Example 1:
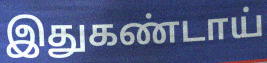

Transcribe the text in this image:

இதுகண்டாய்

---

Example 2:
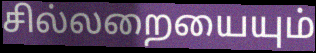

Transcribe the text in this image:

சில்லறையையும்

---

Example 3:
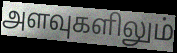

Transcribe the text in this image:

அளவுகளிலும்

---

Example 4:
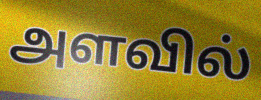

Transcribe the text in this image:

அளவில்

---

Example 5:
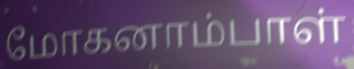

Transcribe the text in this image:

மோகனாம்பாள்